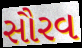
સૌરવ